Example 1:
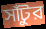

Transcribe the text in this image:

সাঁটুর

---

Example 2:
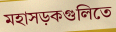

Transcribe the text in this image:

মহাসড়কগুলিতে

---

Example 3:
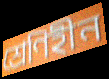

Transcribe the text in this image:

শ্রেণিহীন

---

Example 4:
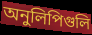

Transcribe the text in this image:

অনুলিপিগুলি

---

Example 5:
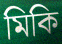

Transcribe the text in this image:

মিকি